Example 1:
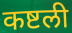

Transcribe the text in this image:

कष्टली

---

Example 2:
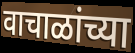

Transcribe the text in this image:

वाचाळांच्या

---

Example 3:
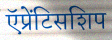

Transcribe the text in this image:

ऍप्रेंटिसशिप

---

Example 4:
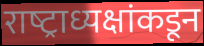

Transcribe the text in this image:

राष्ट्राध्यक्षांकडून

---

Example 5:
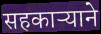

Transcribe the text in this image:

सहकाऱ्याने